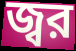
জ্বর